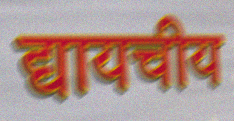
द्यायचीय